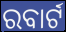
ରବାର୍ଟ